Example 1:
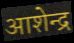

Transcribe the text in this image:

आशेन्द्र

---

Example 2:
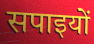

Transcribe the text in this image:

सपाइयों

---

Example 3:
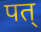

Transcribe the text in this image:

पत्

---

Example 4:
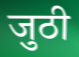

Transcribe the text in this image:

जुठी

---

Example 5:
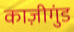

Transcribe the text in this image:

काज़ीगुंड